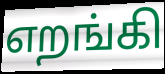
எறங்கி